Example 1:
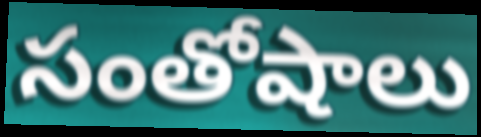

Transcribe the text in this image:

సంతోషాలు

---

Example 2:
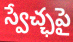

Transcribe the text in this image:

స్వేచ్ఛపై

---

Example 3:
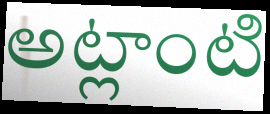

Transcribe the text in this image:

అట్లాంటి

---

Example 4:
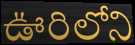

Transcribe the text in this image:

ఊరిలోని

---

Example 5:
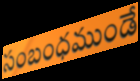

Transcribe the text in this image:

సంబంధముండే